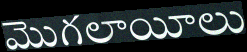
మొగలాయీలు